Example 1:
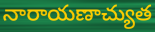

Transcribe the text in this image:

నారాయణాచ్యుత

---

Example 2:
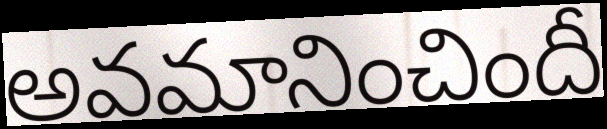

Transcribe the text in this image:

అవమానించిందీ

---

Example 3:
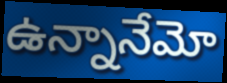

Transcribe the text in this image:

ఉన్నానేమో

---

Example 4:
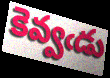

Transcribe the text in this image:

కెవ్వఁడు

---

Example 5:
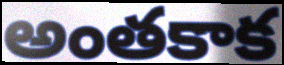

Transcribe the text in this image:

అంతకాక